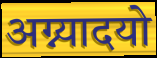
अग्न्यादयो